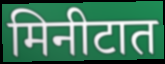
मिनीटात